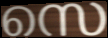
സെ